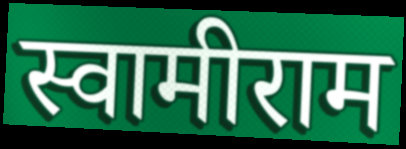
स्वामीराम